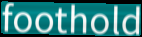
foothold